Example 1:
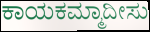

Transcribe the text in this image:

ಕಾಯಕಮ್ಮಾದೀಸು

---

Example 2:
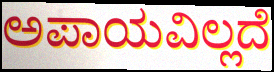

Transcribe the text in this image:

ಅಪಾಯವಿಲ್ಲದೆ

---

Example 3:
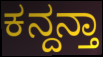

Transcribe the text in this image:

ಕನ್ದನ್ತಾ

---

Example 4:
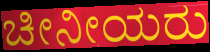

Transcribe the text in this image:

ಚೀನೀಯರು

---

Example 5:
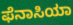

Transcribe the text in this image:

ಫೆನಾಸಿಯಾ